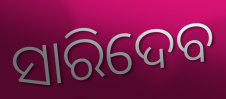
ସାରିଦେବ